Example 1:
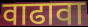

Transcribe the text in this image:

वाढावा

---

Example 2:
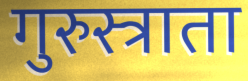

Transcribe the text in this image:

गुरुस्त्राता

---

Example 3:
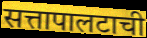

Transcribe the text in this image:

सत्तापालटाची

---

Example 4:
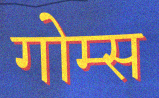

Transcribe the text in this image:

गोम्स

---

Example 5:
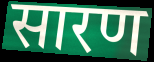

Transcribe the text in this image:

सारण